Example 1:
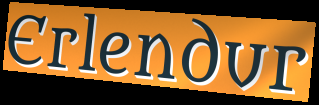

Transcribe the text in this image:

Erlendur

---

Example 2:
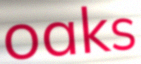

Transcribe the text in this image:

oaks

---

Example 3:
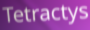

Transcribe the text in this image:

Tetractys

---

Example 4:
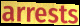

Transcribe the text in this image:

arrests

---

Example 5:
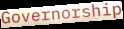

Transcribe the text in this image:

Governorship